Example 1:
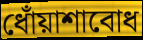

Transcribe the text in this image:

ধোঁয়াশাবোধ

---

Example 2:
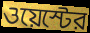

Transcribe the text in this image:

ওয়েস্টের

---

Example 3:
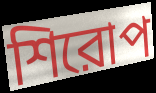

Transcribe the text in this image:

শিরোপ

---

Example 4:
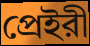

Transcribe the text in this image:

প্রেইরী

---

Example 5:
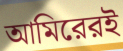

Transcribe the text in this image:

আমিরেরই